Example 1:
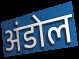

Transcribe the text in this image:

अंडोल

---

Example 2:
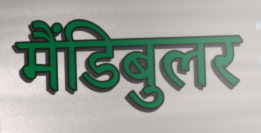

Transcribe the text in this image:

मैंडिबुलर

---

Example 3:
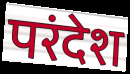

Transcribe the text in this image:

परंदेश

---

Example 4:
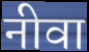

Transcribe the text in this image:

नीवा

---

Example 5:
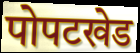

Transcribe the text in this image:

पोपटखेड